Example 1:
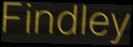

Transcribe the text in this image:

Findley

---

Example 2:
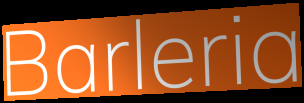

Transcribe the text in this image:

Barleria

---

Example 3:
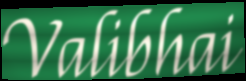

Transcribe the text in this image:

Valibhai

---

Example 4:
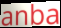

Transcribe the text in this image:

anba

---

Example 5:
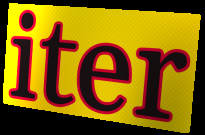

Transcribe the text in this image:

iter